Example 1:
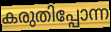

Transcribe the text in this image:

കരുതിപ്പോന്ന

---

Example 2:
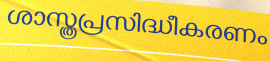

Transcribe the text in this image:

ശാസ്ത്രപ്രസിദ്ധീകരണം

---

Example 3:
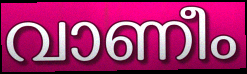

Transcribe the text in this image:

വാണീം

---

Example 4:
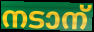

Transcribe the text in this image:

നടാന്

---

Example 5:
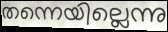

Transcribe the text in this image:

തന്നെയില്ലെന്നു